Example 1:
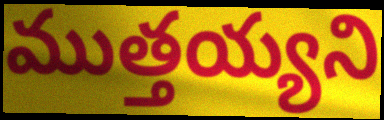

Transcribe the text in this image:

ముత్తయ్యని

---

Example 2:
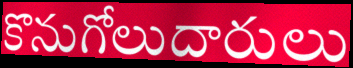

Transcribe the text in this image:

కొనుగోలుదారులు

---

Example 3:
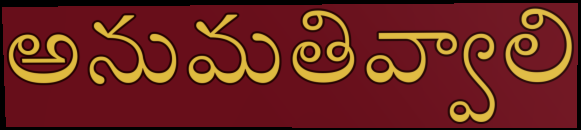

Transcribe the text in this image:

అనుమతివ్వాలి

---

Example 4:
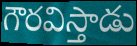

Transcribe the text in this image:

గౌరవిస్తాడు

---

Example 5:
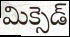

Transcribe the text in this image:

మిక్సెడ్